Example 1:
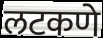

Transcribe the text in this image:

लटकणे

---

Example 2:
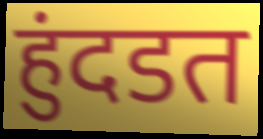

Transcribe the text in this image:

हुंदडत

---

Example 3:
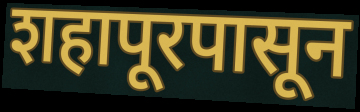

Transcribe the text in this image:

शहापूरपासून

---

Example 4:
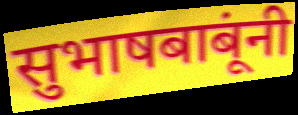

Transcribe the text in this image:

सुभाषबाबूंनी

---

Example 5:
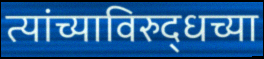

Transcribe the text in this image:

त्यांच्याविरुद्धच्या